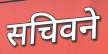
सचिवने